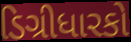
ડિગ્રીધારકો